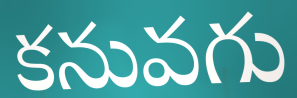
కనువగు